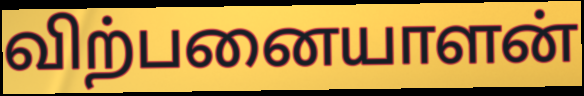
விற்பனையாளன்